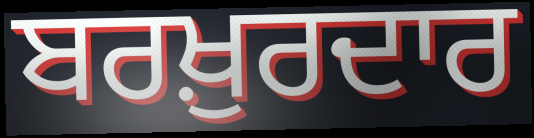
ਬਰਖ਼ੁਰਦਾਰ